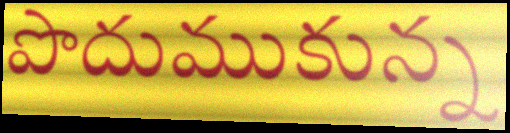
పొదుముకున్న